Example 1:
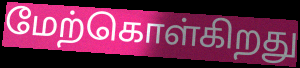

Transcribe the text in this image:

மேற்கொள்கிறது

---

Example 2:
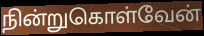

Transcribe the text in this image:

நின்றுகொள்வேன்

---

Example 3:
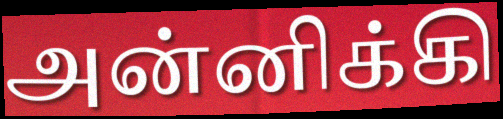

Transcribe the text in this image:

அன்னிக்கி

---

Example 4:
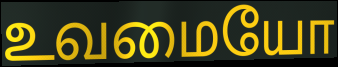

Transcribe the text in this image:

உவமையோ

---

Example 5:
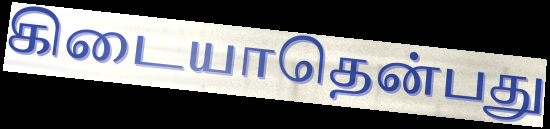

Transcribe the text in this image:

கிடையாதென்பது